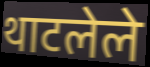
थाटलेले